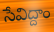
సేవిద్దాం